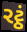
રટ્ઠં